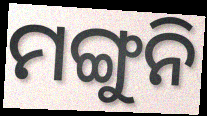
ମଙ୍ଗୁନି